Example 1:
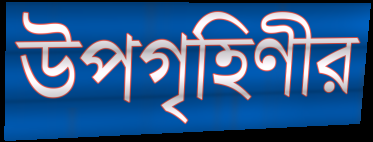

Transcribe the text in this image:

উপগৃহিণীর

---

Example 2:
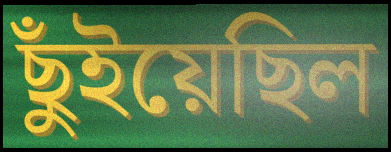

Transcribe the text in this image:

ছুঁইয়েছিল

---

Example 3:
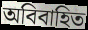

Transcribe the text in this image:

অবিবাহিত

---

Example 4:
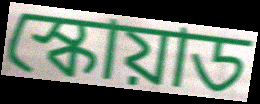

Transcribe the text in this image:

স্কোয়াড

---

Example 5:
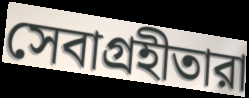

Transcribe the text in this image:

সেবাগ্রহীতারা